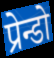
प्रेन्डो